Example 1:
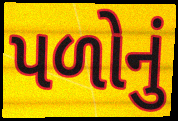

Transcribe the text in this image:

પળોનું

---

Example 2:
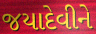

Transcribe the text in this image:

જયાદેવીને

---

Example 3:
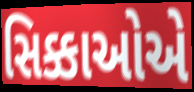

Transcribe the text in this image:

સિક્કાઓએ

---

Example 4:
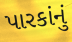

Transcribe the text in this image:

પારકાંનું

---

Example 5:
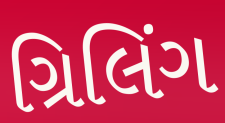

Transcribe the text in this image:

ગ્રિલિંગ